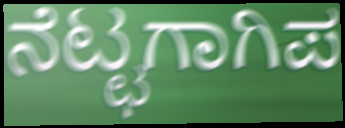
ನೆಟ್ಟಗಾಗಿಪ